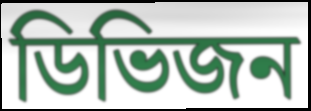
ডিভিজন